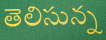
తెలిసున్న